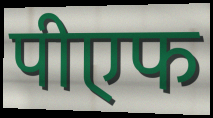
पीएफ